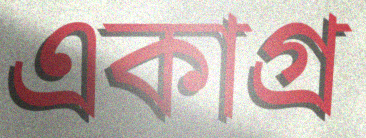
একাগ্র